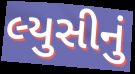
લ્યુસીનું